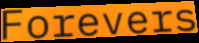
Forevers